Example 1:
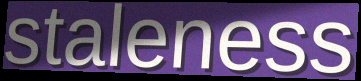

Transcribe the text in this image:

staleness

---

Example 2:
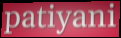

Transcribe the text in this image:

patiyani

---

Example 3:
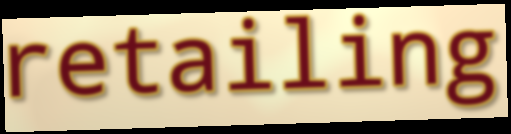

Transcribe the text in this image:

retailing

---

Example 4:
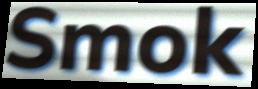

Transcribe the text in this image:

Smok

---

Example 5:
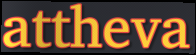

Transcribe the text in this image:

attheva